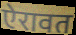
ऐरावत